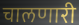
चालणारी